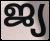
ജ്യ